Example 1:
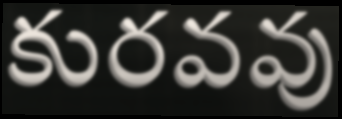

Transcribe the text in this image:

కురవవు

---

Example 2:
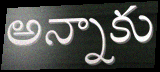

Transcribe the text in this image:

అన్నాకు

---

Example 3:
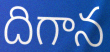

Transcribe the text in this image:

దిగాన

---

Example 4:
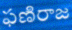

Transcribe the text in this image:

ఫణిరాజ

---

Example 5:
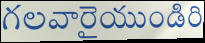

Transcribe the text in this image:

గలవారైయుండిరి